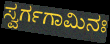
ಸ್ವರ್ಗಗಾಮಿನಃ